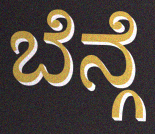
ಬೆನ್ಗೆ